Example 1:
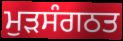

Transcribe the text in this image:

ਮੁੜਸੰਗਠਤ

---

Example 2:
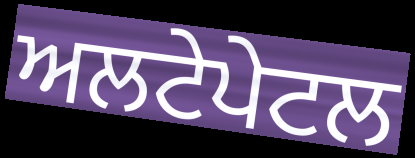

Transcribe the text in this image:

ਅਲਟੇਪੇਟਲ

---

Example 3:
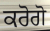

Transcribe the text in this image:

ਕਰੋਗੋ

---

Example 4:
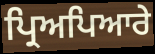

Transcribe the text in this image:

ਪ੍ਰਿਅਪਿਆਰੇ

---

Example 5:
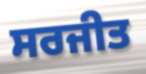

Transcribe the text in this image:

ਸਰਜੀਤ